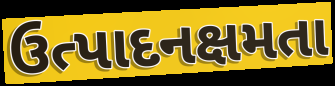
ઉત્પાદનક્ષમતા